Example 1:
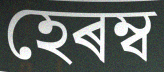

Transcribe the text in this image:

হেৰম্ব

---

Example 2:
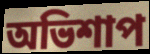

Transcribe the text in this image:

অভিশাপ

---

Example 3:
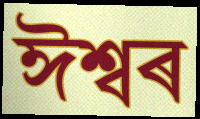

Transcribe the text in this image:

ঈশ্বৰ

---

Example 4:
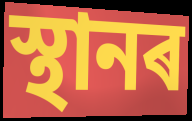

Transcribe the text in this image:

স্থানৰ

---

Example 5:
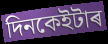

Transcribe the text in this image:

দিনকেইটাৰ